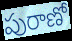
పురాణో